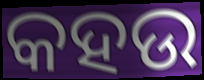
କହଉ